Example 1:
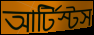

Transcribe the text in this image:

আর্টিস্টস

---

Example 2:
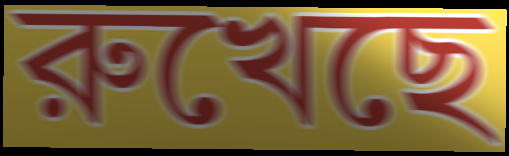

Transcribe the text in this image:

রুখেছে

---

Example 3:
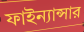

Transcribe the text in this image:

ফাইন্যান্সার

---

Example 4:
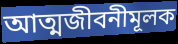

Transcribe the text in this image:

আত্মজীবনীমূলক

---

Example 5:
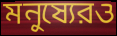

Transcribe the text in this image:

মনুষ্যেরও